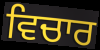
ਵਿਚਾਰ